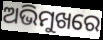
ଅଭିମୁଖରେ